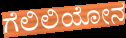
ಗೆಲಿಲಿಯೋನ